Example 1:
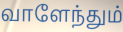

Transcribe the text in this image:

வாளேந்தும்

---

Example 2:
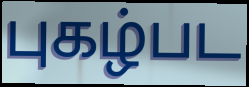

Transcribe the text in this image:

புகழ்பட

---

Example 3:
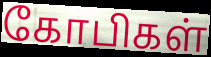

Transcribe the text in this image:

கோபிகள்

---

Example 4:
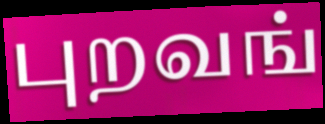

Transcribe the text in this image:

புறவங்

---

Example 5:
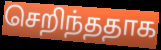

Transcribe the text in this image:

செறிந்ததாக